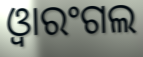
ଓ୍ୱାରଂଗଲ